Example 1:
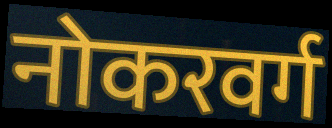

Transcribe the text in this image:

नोकरवर्ग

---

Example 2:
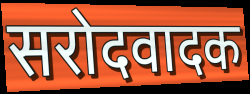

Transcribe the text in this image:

सरोदवादक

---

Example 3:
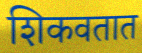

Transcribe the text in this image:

शिकवतात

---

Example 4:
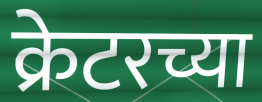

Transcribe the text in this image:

क्रेटरच्या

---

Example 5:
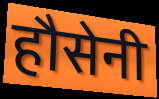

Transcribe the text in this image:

हौसेनी